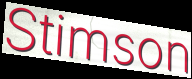
Stimson